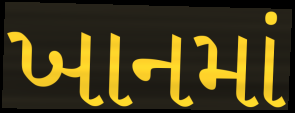
ખાનમાં